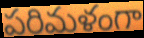
పరిమళంగా